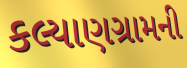
કલ્યાણગ્રામની